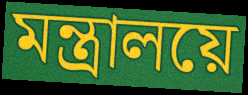
মন্ত্ৰালয়ে